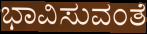
ಭಾವಿಸುವಂತೆ